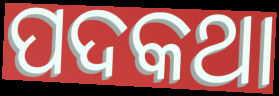
ପଦକଥା